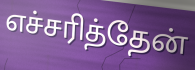
எச்சரித்தேன்